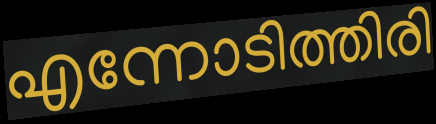
എന്നോടിത്തിരി